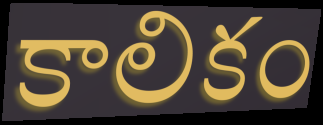
కాలికం